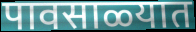
पावसाळ्यात